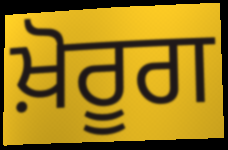
ਖ਼ੋਰੂਗ